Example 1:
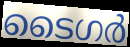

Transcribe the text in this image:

ടൈഗർ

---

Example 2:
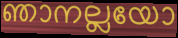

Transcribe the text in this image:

ഞാനല്ലയോ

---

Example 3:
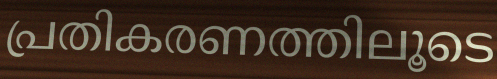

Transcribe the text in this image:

പ്രതികരണത്തിലൂടെ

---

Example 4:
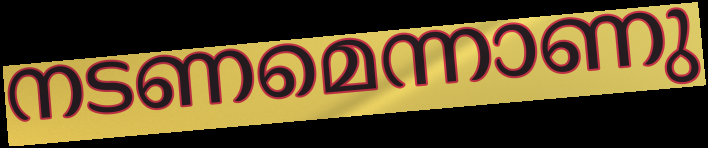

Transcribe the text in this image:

നടണമെന്നാണു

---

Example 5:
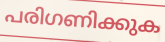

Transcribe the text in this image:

പരിഗണിക്കുക